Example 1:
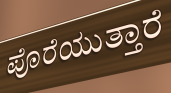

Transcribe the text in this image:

ಪೊರೆಯುತ್ತಾರೆ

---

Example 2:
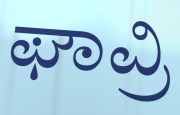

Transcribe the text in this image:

ಘಾವ್ರಿ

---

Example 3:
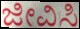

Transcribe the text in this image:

ಜೀವಿಸಿ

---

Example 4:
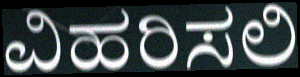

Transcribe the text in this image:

ವಿಹರಿಸಲಿ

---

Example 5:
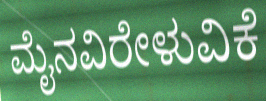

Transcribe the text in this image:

ಮೈನವಿರೇಳುವಿಕೆ